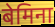
बेमिना